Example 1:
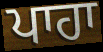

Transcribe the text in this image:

ਪਾਹਾ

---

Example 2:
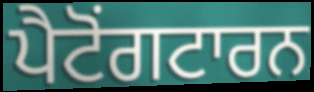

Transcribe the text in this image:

ਪੈਟੋਂਗਟਾਰਨ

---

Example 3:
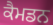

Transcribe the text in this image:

ਕੈਮਡਨ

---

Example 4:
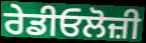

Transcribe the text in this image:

ਰੇਡੀਓਲੋਜ਼ੀ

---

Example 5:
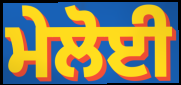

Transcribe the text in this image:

ਮੇਲੋਈ